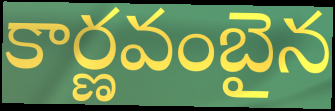
కార్ణవంబైన